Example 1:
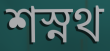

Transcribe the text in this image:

শস্নথ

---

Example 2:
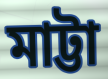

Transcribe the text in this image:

মাট্টা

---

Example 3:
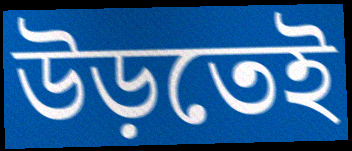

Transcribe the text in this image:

উড়তেই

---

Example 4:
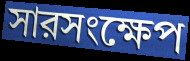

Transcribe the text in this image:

সারসংক্ষেপ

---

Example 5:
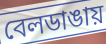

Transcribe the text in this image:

বেলডাঙায়